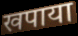
खपाया